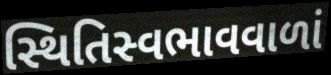
સ્થિતિસ્વભાવવાળાં